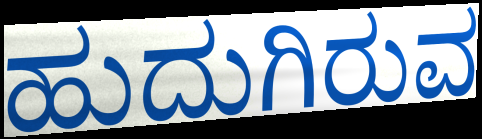
ಹುದುಗಿರುವ